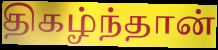
திகழ்ந்தான்